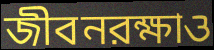
জীবনরক্ষাও